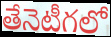
తేనెటీగలో